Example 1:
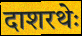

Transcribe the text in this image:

दाशरथेः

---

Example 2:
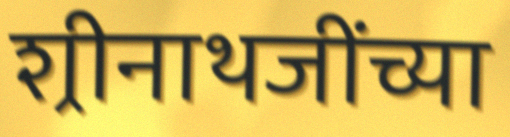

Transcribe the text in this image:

श्रीनाथजींच्या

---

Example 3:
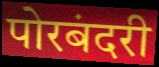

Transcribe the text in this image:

पोरबंदरी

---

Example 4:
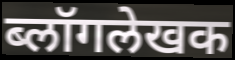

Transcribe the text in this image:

ब्लॉगलेखक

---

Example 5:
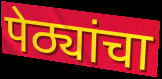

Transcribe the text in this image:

पेठ्यांचा